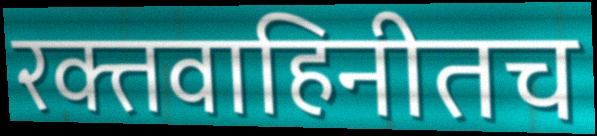
रक्तवाहिनीतच